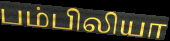
பம்பிலியா